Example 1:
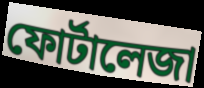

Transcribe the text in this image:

ফোর্টালেজা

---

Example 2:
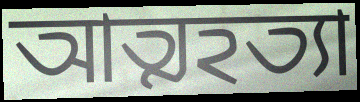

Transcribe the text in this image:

আত্মহত্যা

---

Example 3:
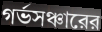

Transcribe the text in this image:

গর্ভসঞ্চারের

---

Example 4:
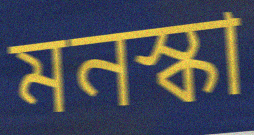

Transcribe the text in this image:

মনস্কা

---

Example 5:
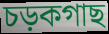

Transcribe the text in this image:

চড়কগাছ